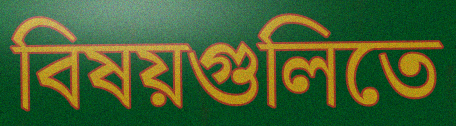
বিষয়গুলিতে